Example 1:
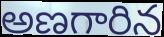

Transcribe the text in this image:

అణగారిన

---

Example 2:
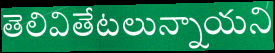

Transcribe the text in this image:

తెలివితేటలున్నాయని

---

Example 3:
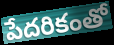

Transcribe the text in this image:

పేదరికంతో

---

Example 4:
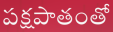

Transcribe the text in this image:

పక్షపాతంతో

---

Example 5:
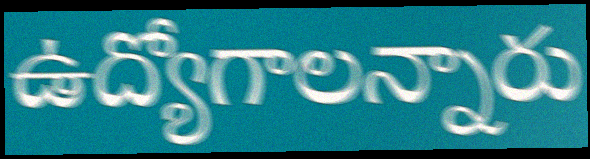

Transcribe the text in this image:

ఉద్యోగాలన్నారు